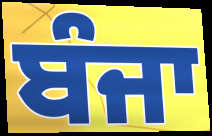
ਬੰਜਾ